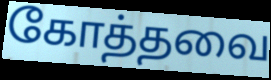
கோத்தவை